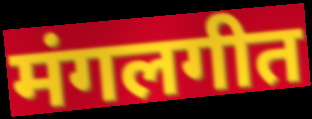
मंगलगीत